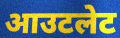
आउटलेट